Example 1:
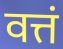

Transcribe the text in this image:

वत्तं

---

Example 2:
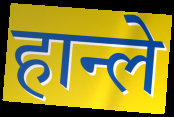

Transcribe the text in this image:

हान्ले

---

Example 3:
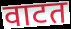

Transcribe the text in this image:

वाटत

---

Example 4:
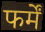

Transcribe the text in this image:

फर्में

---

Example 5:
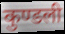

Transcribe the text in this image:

कुण्डली